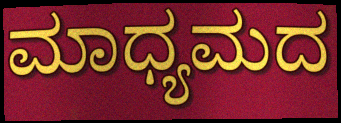
ಮಾಧ್ಯಮದ